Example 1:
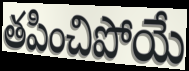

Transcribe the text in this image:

తపించిపోయే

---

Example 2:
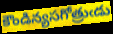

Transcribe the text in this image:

కౌండిన్యసగోత్రుఁడు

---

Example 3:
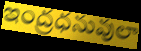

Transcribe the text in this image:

ఇంద్రధనువులా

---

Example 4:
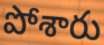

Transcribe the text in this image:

పోశారు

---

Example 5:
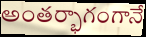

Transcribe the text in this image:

అంతర్భాగంగానే